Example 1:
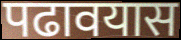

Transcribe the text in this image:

पढावयास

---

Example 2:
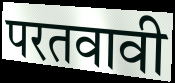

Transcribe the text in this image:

परतवावी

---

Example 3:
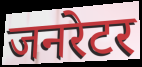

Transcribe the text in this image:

जनरेटर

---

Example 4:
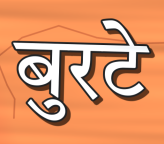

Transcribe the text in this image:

बुरटे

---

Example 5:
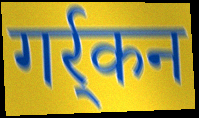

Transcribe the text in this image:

गर्र्कन